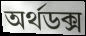
অৰ্থডক্স